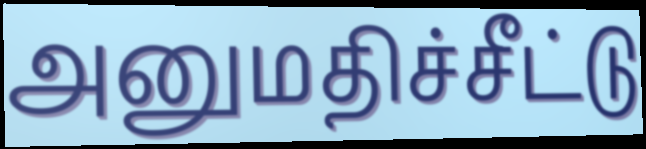
அனுமதிச்சீட்டு